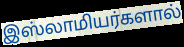
இஸ்லாமியர்களால்